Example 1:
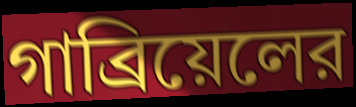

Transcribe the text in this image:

গাব্রিয়েলের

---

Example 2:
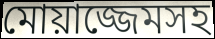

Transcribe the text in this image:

মোয়াজ্জেমসহ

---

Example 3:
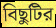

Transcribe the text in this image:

বিছুটির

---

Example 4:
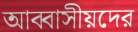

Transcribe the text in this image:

আব্বাসীয়দের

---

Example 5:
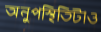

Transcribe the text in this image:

অনুপস্থিতিটাও